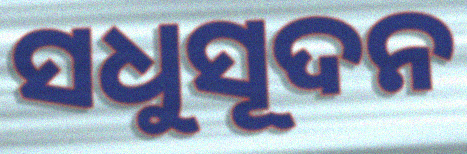
ସଧୁସୂଦନ